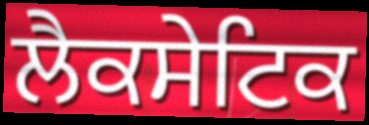
ਲੈਕਸੇਟਿਕ